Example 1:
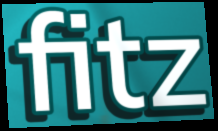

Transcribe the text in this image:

fitz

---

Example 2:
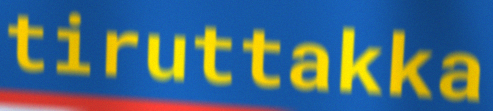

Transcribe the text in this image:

tiruttakka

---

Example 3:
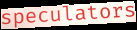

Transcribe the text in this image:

speculators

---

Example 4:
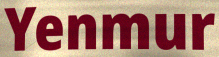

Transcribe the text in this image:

Yenmur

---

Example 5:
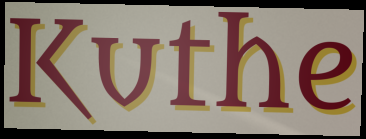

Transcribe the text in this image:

Kuthe